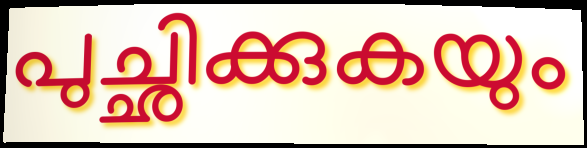
പുച്ഛിക്കുകയും